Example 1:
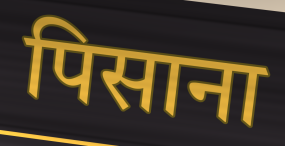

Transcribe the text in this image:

पिसाना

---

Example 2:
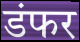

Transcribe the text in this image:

डंफर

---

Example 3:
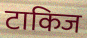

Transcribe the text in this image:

टाकिज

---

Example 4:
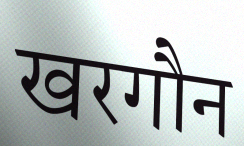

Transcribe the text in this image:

खरगौन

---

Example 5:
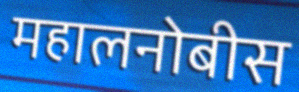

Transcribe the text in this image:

महालनोबीस